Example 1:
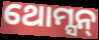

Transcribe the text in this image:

ଥୋମ୍ସନ୍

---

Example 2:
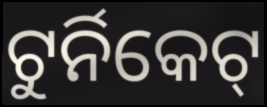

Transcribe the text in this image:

ଟୁର୍ନିକେଟ୍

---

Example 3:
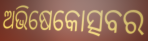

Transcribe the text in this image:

ଅଭିଷେକୋତ୍ସବର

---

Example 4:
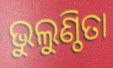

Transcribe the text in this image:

ଭୁଲୁଣ୍ଠିତା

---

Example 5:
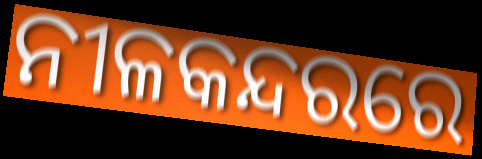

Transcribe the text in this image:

ନୀଳକନ୍ଦରରେ